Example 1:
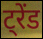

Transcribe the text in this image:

ट्रेंड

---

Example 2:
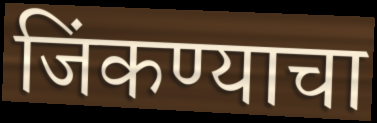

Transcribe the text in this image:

जिंकण्याचा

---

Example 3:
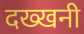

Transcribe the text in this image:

दख्खनी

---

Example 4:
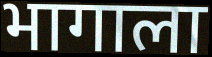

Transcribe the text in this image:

भागाला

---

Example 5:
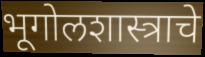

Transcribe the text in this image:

भूगोलशास्त्राचे